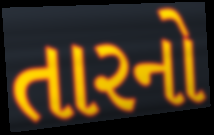
તારનો